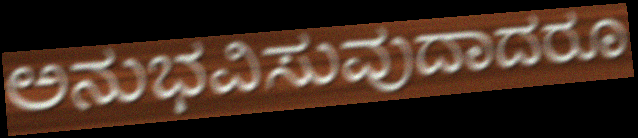
ಅನುಭವಿಸುವುದಾದರೂ